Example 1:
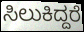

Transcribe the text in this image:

ಸಿಲುಕಿದ್ದರೆ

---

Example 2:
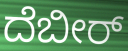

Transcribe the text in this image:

ದೆಬೀರ್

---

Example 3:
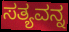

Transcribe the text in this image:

ಸತ್ಯವನ್ನ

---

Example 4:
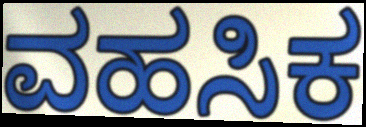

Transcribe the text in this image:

ವಹಸಿಕ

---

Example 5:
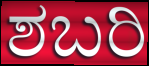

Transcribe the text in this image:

ಶಬರಿ